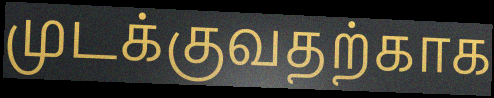
முடக்குவதற்காக